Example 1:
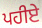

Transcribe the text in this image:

ਪਹੀਏ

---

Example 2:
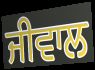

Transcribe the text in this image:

ਜੀਵਾਲ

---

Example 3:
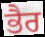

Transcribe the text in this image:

ਭੈਰ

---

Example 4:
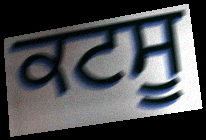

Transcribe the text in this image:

ਕਟਸੂ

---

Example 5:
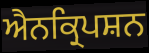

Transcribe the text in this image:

ਐਨਕ੍ਰਿਪਸ਼ਨ